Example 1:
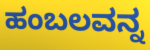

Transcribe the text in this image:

ಹಂಬಲವನ್ನ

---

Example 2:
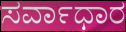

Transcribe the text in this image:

ಸರ್ವಾಧಾರ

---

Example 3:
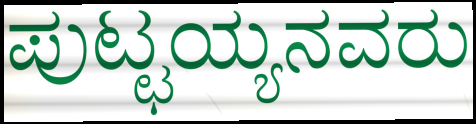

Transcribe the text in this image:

ಪುಟ್ಟಯ್ಯನವರು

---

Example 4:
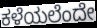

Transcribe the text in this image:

ಕಳೆಯಲೆಂದೇ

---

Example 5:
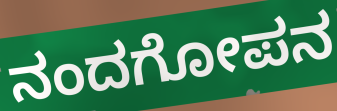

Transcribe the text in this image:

ನಂದಗೋಪನ